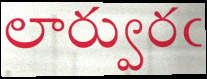
లార్వురఁ